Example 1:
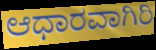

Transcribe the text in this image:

ಆಧಾರವಾಗಿರಿ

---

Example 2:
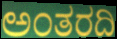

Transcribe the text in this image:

ಅಂತರದಿ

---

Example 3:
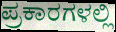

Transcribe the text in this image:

ಪ್ರಕಾರಗಳಲ್ಲಿ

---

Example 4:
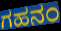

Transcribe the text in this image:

ಗಹನಂ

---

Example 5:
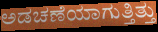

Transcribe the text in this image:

ಅಡಚಣೆಯಾಗುತ್ತಿತ್ತು